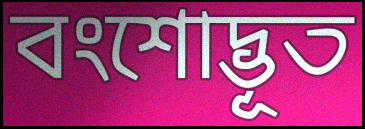
বংশোদ্ভূত